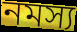
নমস্য